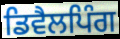
ਡਿਵੈਲਪਿੰਗ